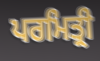
ਪਰਮਿਤ੍ਰੀ